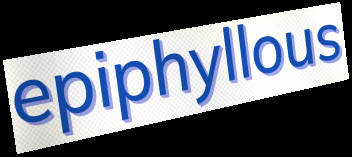
epiphyllous